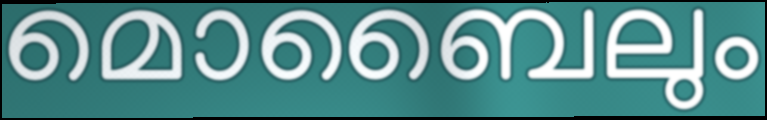
മൊബൈലും